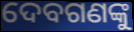
ଦେବଗଣଙ୍କୁ